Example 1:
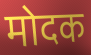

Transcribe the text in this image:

मोदक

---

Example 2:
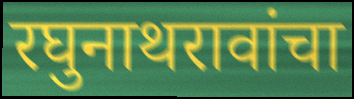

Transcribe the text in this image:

रघुनाथरावांचा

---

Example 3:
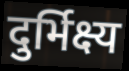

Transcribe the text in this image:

दुर्भिक्ष्य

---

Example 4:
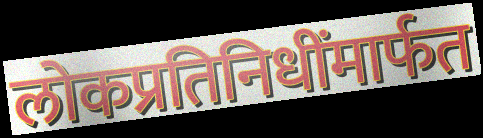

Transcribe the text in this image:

लोकप्रतिनिधींमार्फत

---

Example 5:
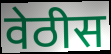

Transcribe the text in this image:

वेठीस